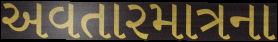
અવતારમાત્રના